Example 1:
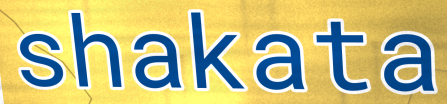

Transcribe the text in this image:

shakata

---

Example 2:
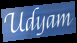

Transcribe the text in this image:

Udyam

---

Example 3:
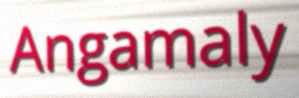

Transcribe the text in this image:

Angamaly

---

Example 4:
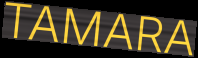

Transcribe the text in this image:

TAMARA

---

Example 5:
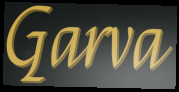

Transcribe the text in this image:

Garva